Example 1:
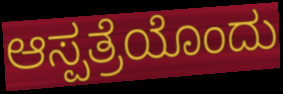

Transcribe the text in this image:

ಆಸ್ಪತ್ರೆಯೊಂದು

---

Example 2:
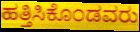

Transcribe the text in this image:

ಹತ್ತಿಸಿಕೊಂಡವರು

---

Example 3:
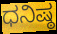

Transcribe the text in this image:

ಧನಿಷ್ಠ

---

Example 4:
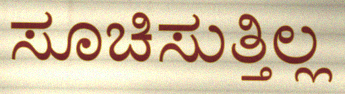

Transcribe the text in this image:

ಸೂಚಿಸುತ್ತಿಲ್ಲ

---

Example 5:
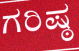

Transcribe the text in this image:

ಗರಿಷ್ಠ